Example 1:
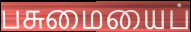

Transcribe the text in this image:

பசுமையைப்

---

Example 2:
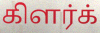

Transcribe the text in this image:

கிளர்க்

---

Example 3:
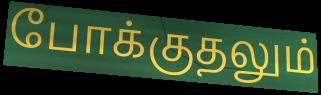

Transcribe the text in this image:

போக்குதலும்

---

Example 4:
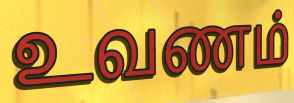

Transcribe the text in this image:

உவணம்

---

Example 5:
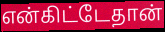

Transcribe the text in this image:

என்கிட்டேதான்